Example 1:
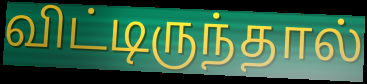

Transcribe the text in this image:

விட்டிருந்தால்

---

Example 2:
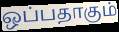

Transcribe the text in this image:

ஒப்பதாகும்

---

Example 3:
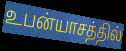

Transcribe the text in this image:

உபன்யாசத்தில்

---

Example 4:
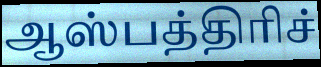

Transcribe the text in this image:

ஆஸ்பத்திரிச்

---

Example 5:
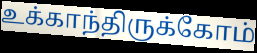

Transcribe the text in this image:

உக்காந்திருக்கோம்